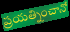
ప్రయత్నించానో